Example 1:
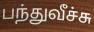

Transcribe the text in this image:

பந்துவீச்சு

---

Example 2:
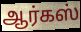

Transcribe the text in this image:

ஆர்கஸ்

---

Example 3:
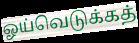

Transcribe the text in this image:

ஓய்வெடுக்கத்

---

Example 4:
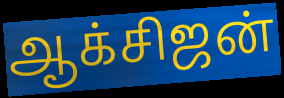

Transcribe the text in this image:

ஆக்சிஜன்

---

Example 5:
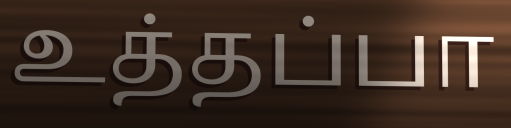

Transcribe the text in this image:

உத்தப்பா